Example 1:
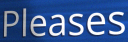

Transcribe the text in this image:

Pleases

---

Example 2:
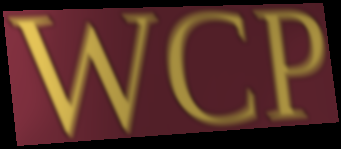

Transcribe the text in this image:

WCP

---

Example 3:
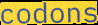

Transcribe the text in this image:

codons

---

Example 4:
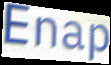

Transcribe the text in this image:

Enap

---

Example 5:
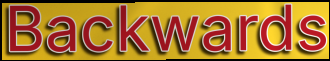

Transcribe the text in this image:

Backwards